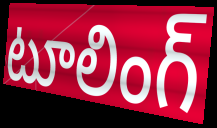
టూలింగ్